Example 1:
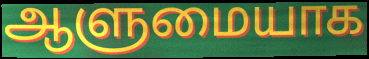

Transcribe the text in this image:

ஆளுமையாக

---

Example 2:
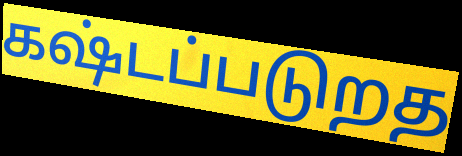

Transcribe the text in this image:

கஷ்டப்படுறத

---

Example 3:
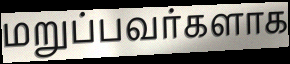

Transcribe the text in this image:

மறுப்பவர்களாக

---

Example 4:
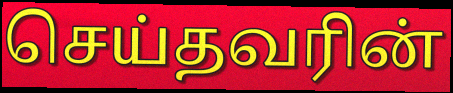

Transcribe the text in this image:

செய்தவரின்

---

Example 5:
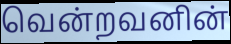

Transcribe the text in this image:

வென்றவனின்